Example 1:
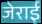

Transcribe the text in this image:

जेराई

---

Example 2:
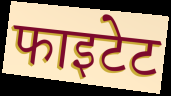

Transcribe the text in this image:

फाइटेट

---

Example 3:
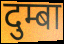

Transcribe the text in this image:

दुम्बा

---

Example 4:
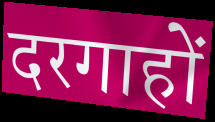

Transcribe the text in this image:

दरगाहों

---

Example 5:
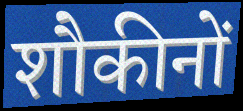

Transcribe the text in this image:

शौकीनों